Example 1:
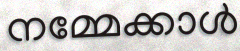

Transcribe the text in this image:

നമ്മേക്കാൾ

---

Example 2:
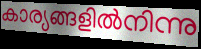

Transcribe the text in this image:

കാര്യങ്ങളിൽനിന്നു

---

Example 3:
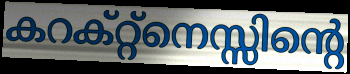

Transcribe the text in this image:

കറക്റ്റ്നെസ്സിന്റെ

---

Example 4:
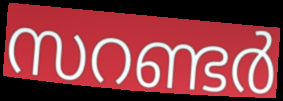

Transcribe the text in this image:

സറണ്ടർ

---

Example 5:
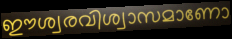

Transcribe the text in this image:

ഈശ്വരവിശ്വാസമാണോ